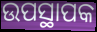
ଉପସ୍ଥାପକ